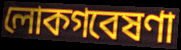
লোকগবেষণা